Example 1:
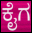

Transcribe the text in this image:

ಕೈಗ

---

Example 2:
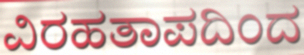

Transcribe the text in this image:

ವಿರಹತಾಪದಿಂದ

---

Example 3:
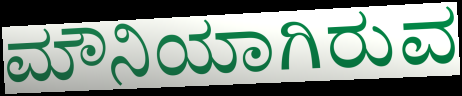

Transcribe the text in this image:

ಮೌನಿಯಾಗಿರುವ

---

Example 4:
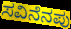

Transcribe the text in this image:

ಸವಿನೆನಪು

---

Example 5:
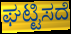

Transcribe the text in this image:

ಘಟ್ಟಿಸದೆ